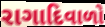
રાગાદિવાળો